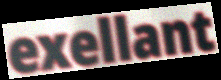
exellant